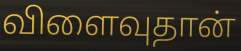
விளைவுதான்